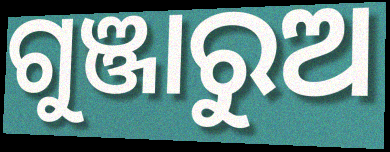
ଗୁଞ୍ଜାରୁଅ